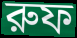
রুফ